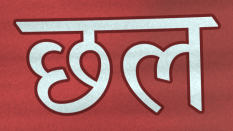
छल